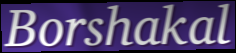
Borshakal